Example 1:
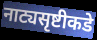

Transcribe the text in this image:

नाट्यसृष्टीकडे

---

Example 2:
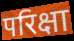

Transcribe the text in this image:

परिक्षा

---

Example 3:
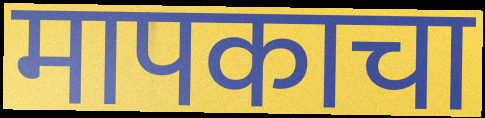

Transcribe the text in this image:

मापकाचा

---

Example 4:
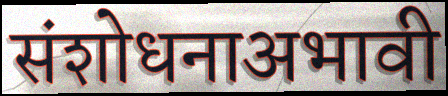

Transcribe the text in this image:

संशोधनाअभावी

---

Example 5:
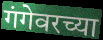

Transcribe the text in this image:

गंगेवरच्या